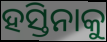
ହସ୍ତିନାକୁ